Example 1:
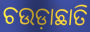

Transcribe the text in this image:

ଚଉଡ଼ାଛାତି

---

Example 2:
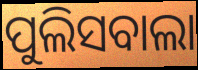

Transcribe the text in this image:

ପୁଲିସବାଲା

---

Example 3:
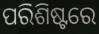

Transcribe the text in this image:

ପରିଶିଷ୍ଟରେ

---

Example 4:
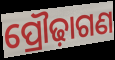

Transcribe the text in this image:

ପ୍ରୌଢ଼ାଗଣ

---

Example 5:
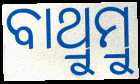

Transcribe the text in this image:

ବାଥ୍ରୁମ୍ରୁ